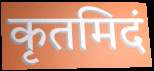
कृतमिदं